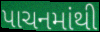
પાચનમાંથી